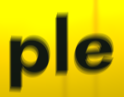
ple